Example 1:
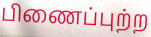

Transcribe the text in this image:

பிணைப்புற்ற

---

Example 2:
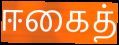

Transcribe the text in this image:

ஈகைத்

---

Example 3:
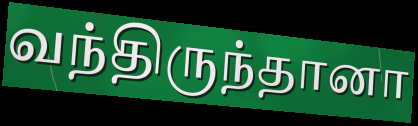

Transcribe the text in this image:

வந்திருந்தானா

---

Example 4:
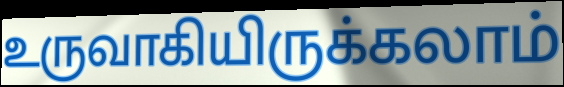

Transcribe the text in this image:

உருவாகியிருக்கலாம்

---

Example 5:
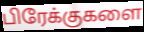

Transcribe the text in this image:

பிரேக்குகளை